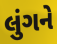
લુંગને